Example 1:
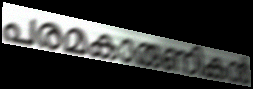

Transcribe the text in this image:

പരമകാരുണികൻ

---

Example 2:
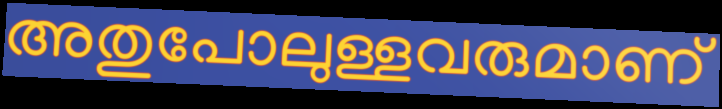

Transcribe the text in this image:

അതുപോലുള്ളവരുമാണ്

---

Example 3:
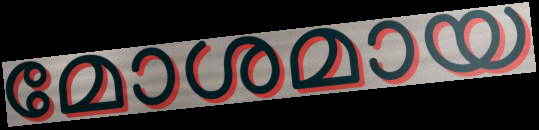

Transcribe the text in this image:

മോശമായ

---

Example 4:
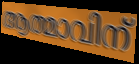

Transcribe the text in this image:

ആത്മാവിന്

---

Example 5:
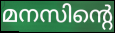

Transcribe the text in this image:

മനസിന്റെ